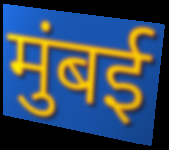
मुंबई